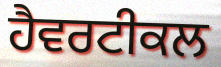
ਹੈਵਰਟੀਕਲ